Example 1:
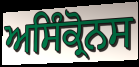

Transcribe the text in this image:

ਅਸਿੰਕ੍ਰੋਨਸ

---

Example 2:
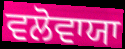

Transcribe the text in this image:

ਵਲੋਵਾਯਾ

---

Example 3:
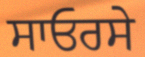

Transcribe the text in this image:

ਸਾਓਰਸੇ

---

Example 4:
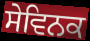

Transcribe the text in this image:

ਸੇਵਿਨਕ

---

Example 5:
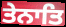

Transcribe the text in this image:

ਤੇਨਾਤਿ